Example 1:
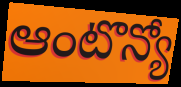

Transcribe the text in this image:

ఆంటొన్యో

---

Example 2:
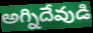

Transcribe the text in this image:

అగ్నిదేవుడి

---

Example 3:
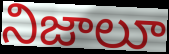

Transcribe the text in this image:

నిజాలూ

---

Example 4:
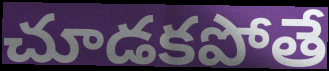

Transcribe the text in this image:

చూడకపోతే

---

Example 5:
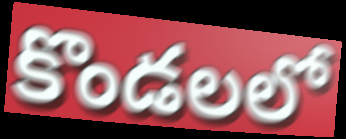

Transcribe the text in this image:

కొండలలో